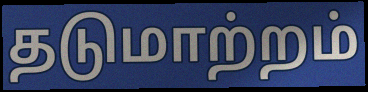
தடுமாற்றம்